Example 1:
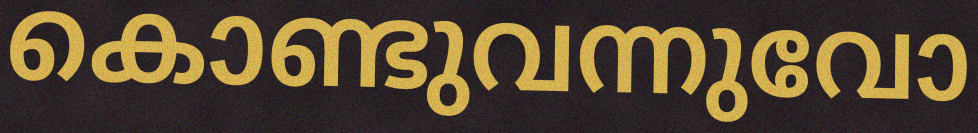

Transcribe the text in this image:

കൊണ്ടുവന്നുവോ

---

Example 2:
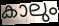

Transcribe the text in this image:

കാലും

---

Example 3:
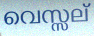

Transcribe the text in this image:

വെസ്സല്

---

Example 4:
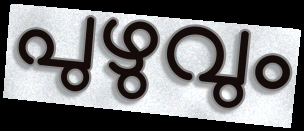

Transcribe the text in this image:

പുഴുവും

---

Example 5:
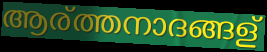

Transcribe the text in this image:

ആര്ത്തനാദങ്ങള്